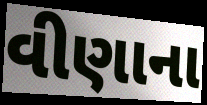
વીણાના